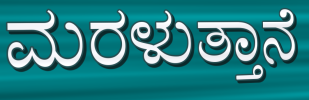
ಮರಳುತ್ತಾನೆ